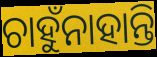
ଚାହୁଁନାହାନ୍ତି